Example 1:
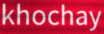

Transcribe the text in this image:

khochay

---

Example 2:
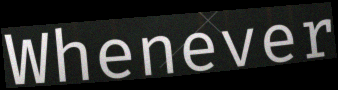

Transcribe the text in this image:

Whenever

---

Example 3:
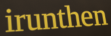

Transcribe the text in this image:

irunthen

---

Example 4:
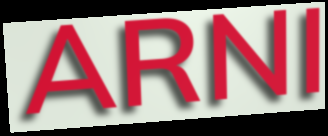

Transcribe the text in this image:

ARNI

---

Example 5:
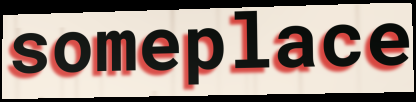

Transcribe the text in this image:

someplace